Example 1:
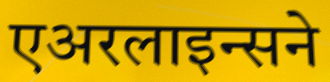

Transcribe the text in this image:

एअरलाइन्सने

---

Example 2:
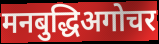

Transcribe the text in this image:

मनबुद्धिअगोचर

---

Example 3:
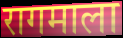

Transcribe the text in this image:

रागमाला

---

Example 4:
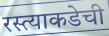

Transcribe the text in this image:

रस्त्याकडेची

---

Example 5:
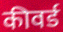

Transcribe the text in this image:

कीवर्ड